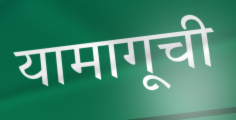
यामागूची